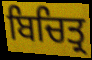
ਬਿਚਿਤ੍ਰ